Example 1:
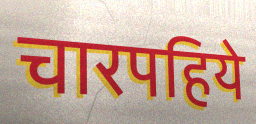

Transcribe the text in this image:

चारपहिये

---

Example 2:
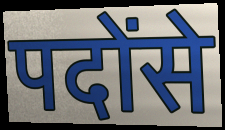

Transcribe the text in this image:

पदोंसे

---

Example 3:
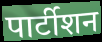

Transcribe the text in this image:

पार्टीशन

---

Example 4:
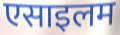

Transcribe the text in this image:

एसाइलम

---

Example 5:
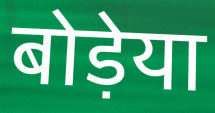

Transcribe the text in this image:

बोड़ेया